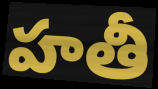
హతీ